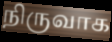
நிருவாக